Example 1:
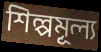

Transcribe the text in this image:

শিল্পমূল্য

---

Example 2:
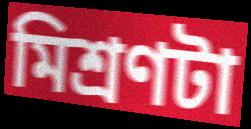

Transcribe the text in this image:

মিশ্রণটা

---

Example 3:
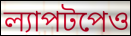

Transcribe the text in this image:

ল্যাপটপেও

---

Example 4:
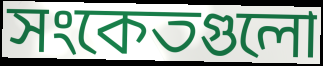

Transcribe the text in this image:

সংকেতগুলো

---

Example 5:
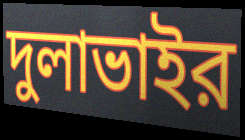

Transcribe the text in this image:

দুলাভাইর